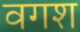
वगश